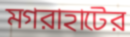
মগরাহাটের